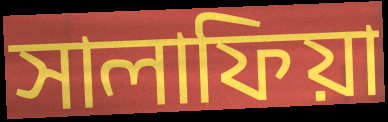
সালাফিয়া